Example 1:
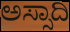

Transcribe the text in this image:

ಅಸ್ಸಾದಿ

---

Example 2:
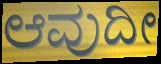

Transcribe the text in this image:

ಆವುದೀ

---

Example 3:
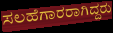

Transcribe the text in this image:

ಸಲಹೆಗಾರರಾಗಿದ್ದರು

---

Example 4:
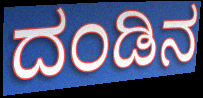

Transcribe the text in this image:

ದಂಡಿನ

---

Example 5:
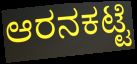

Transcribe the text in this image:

ಆರನಕಟ್ಟೆ